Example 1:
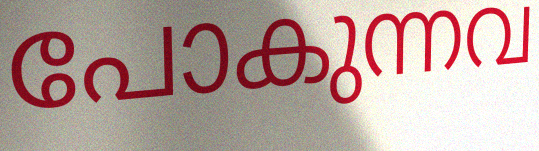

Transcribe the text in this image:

പോകുന്നവ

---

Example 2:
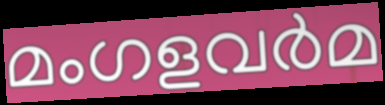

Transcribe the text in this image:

മംഗളവർമ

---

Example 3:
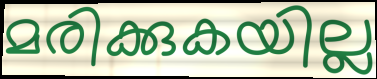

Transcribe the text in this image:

മരിക്കുകയില്ല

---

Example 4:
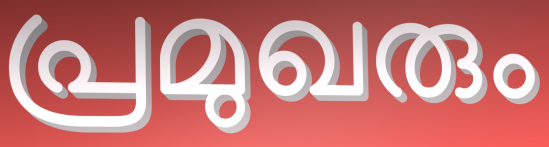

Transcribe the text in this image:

പ്രമുഖരും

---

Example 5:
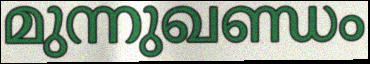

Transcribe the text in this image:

മുന്നുഖണ്ഡം